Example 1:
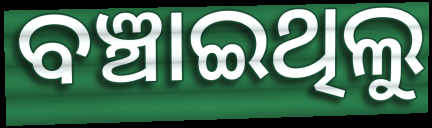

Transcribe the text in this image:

ବଞ୍ଚାଇଥିଲୁ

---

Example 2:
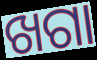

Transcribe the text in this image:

ଖଗା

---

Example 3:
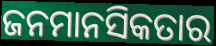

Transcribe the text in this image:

ଜନମାନସିକତାର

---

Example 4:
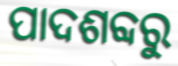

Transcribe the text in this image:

ପାଦଶବ୍ଦରୁ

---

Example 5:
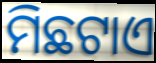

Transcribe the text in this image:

ମିଛଟାଏ